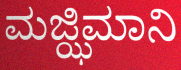
ಮಜ್ಝಿಮಾನಿ